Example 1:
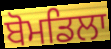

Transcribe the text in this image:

ਬੋਮਡਿਲਾ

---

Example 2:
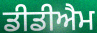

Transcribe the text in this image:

ਡੀਡੀਐਮ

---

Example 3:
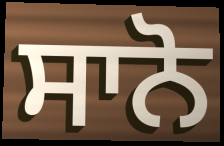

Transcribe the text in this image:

ਸਾਨੋ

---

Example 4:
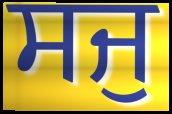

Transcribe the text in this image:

ਸਜੁ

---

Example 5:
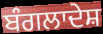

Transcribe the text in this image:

ਬੰਗਲਾਦੇਸ਼